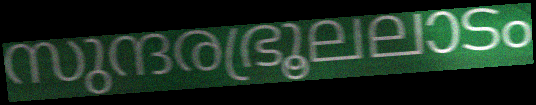
സുന്ദരഭ്രൂലലാടം